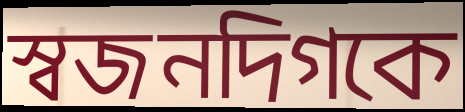
স্বজনদিগকে